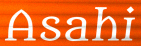
Asahi